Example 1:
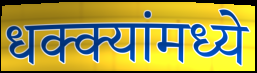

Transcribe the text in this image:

धक्क्यांमध्ये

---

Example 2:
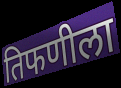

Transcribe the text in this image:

तिफणीला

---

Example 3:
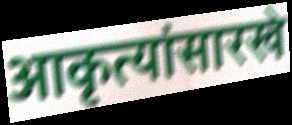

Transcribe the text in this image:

आकृत्यांसारखे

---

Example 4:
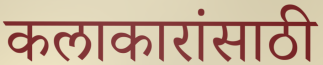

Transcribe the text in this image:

कलाकारांसाठी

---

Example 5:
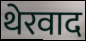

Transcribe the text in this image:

थेरवाद